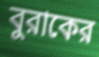
বুরাকের